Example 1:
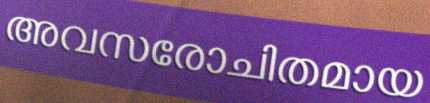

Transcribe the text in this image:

അവസരോചിതമായ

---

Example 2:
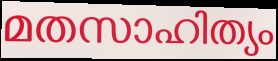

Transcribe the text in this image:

മതസാഹിത്യം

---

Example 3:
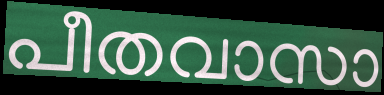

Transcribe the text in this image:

പീതവാസാ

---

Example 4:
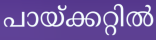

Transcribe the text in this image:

പായ്ക്കറ്റിൽ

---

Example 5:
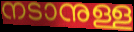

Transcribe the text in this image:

നടാനുള്ള